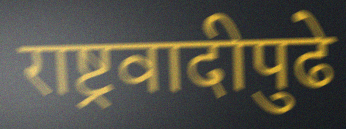
राष्ट्रवादीपुढे